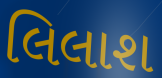
લિલાશ